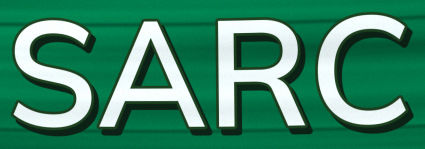
SARC